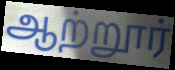
ஆற்றூர்